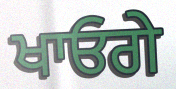
ਖਾਓਗੇ